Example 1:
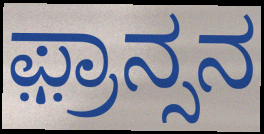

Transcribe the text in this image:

ಫ಼್ರಾನ್ಸನ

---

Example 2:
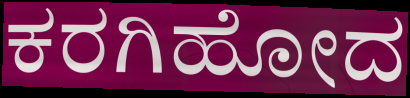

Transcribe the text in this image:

ಕರಗಿಹೋದ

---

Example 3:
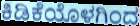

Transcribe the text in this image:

ಕಿಡಿಕೆಯೊಳಗಿಂದ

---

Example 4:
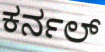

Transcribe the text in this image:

ಕರ್ನಲ್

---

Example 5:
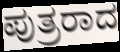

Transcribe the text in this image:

ಪುತ್ರರಾದ